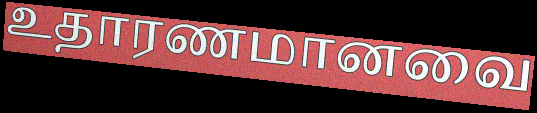
உதாரணமானவை